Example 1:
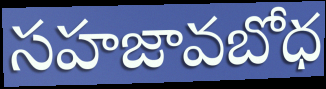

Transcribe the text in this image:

సహజావబోధ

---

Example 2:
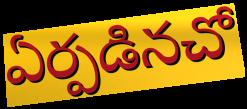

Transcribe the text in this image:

ఏర్పడినచో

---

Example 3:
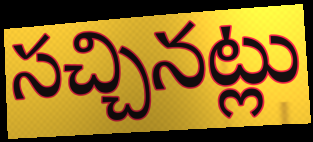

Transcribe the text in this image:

సచ్చినట్లు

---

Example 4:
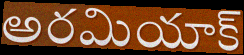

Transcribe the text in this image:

అరమియాక్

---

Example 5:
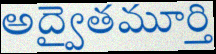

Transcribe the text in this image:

అద్వైతమూర్తి